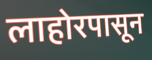
लाहोरपासून